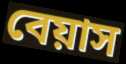
বেয়াস